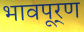
भावपूर्ण